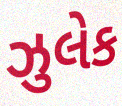
ઝુલેક